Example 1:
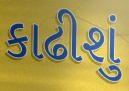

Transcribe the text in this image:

કાઢીશું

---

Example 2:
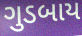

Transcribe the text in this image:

ગુડબાય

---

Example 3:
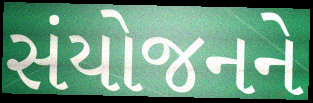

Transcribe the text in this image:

સંયોજનને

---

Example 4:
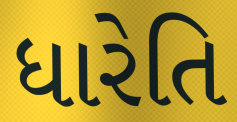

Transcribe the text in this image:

ધારેતિ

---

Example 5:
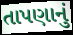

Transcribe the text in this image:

તાપણાનું